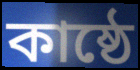
কাষ্ঠে